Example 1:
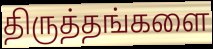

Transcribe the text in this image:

திருத்தங்களை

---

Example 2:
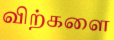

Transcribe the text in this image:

விற்களை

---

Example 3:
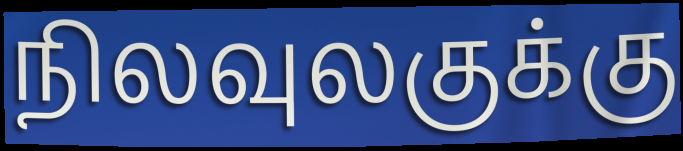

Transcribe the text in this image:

நிலவுலகுக்கு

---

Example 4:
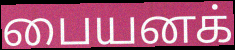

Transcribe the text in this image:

பையனக்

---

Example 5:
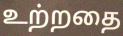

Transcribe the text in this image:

உற்றதை